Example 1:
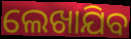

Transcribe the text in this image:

ଲେଖାଯିବ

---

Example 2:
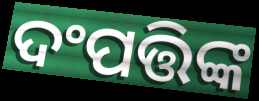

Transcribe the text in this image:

ଦଂପତ୍ତିଙ୍କ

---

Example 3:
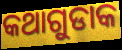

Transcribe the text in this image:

କଥାଗୁଡାକ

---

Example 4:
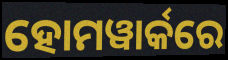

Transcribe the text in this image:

ହୋମୱାର୍କରେ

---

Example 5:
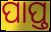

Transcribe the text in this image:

ପାପ୍ତ